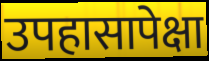
उपहासापेक्षा